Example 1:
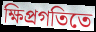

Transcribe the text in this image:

ক্ষিপ্রগতিতে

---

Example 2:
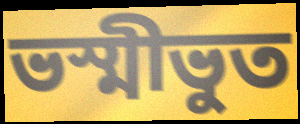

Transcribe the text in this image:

ভস্মীভুত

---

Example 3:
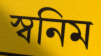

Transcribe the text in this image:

স্বনিম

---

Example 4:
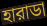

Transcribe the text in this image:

হারাডা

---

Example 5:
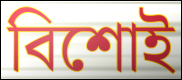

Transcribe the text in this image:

বিশোই